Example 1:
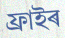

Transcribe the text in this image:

ফ্ৰাইৰ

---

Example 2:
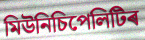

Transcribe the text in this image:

মিউনিচিপেলিটিৰ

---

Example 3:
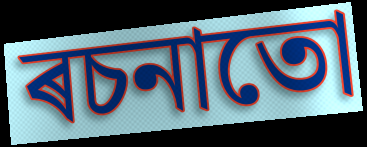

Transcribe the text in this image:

ৰচনাতো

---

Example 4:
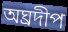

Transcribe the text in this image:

অঘ্ৰদীপ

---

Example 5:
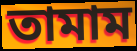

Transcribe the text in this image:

তামাম